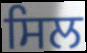
ਸਿਲ